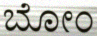
ಬೋಂ